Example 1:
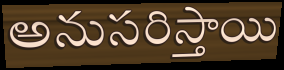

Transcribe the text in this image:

అనుసరిస్తాయి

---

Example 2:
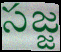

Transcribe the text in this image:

సజ్జ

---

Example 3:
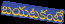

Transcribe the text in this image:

బయటకంటే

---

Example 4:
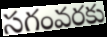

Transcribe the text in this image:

సగంవరకు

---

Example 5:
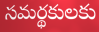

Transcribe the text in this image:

సమర్థకులకు